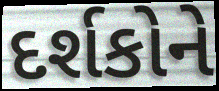
દર્શકોને